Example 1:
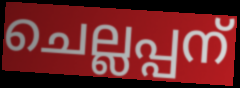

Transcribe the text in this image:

ചെല്ലപ്പന്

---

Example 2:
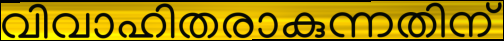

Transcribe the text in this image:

വിവാഹിതരാകുന്നതിന്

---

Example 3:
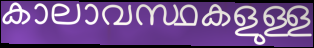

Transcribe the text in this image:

കാലാവസ്ഥകളുള്ള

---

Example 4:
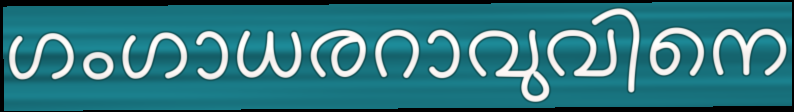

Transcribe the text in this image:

ഗംഗാധരറാവുവിനെ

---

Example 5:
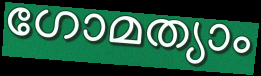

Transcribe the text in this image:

ഗോമത്യാം